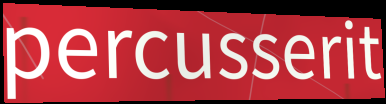
percusserit